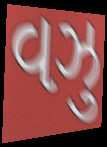
વઝુ